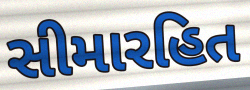
સીમારહિત